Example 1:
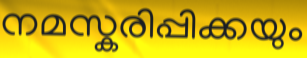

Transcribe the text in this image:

നമസ്കരിപ്പിക്കയും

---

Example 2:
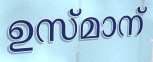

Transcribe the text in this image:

ഉസ്മാന്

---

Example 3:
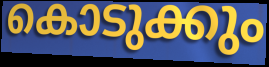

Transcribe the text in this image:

കൊടുക്കും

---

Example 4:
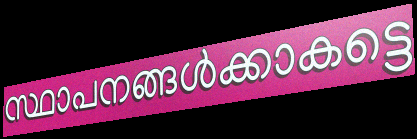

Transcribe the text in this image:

സ്ഥാപനങ്ങൾക്കാകട്ടെ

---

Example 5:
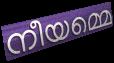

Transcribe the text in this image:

നീയമ്മെ